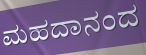
ಮಹದಾನಂದ